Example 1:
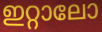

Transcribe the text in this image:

ഇറ്റാലോ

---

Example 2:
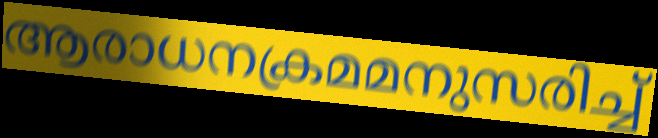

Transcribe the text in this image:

ആരാധനക്രമമനുസരിച്ച്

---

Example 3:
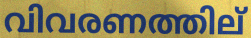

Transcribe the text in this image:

വിവരണത്തില്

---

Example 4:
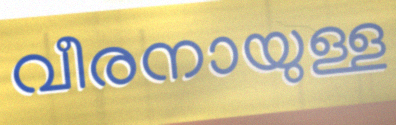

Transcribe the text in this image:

വീരനായുള്ള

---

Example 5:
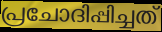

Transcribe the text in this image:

പ്രചോദിപ്പിച്ചത്